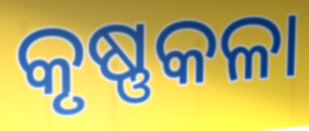
କୃଷ୍ଣକଳା